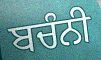
ਬਚੰਨੀ